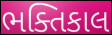
ભક્તિકાલ